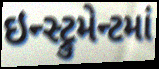
ઇન્સ્ટ્રુમેન્ટમાં